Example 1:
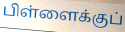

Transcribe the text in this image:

பிள்ளைக்குப்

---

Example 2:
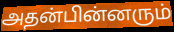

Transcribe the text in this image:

அதன்பின்னரும்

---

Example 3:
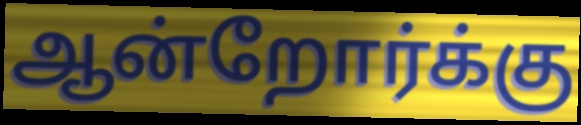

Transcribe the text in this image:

ஆன்றோர்க்கு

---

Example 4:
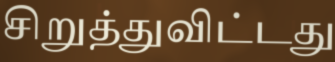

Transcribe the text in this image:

சிறுத்துவிட்டது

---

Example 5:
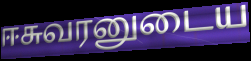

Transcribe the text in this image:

ஈசுவரனுடைய